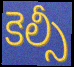
కెల్సీ